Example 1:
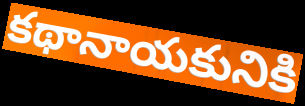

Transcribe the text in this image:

కథానాయకునికి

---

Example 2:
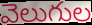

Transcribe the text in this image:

వెలుగుల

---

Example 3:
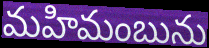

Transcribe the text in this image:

మహిమంబును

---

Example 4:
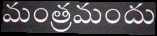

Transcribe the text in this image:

మంత్రమందు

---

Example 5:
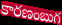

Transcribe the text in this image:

కారణంబుగ